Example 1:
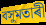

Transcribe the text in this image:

বসুমতাৰী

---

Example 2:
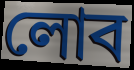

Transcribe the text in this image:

লোব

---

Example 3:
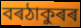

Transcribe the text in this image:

বৰঠাকুৰৰ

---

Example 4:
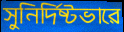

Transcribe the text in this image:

সুনিৰ্দিষ্টভাৱে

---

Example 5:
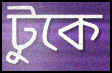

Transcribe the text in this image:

টুকে